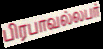
பிரபாவல்லபர்